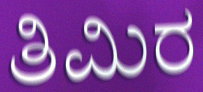
ತಿಮಿರ